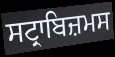
ਸਟ੍ਰਾਬਿਜ਼ਮਸ